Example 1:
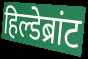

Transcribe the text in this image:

हिल्डेब्रांट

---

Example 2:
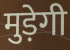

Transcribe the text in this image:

मुड़ेगी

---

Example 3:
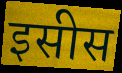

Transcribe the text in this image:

इसीस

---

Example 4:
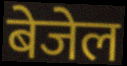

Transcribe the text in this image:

बेजेल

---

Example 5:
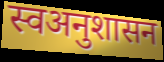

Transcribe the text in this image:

स्वअनुशासन